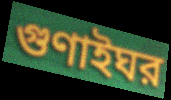
গুণাইঘর